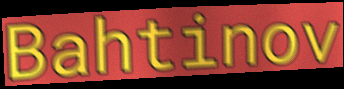
Bahtinov